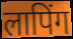
लापिंग